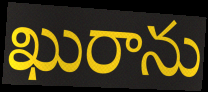
ఖురాను